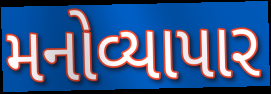
મનોવ્યાપાર